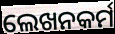
ଲେଖନକର୍ମ